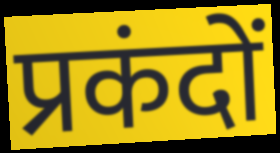
प्रकंदों